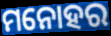
ମନୋହର